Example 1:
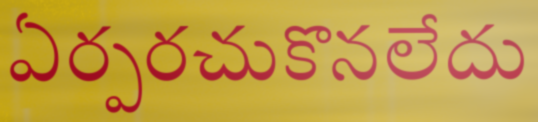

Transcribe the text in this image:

ఏర్పరచుకొనలేదు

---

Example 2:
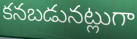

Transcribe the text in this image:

కనబడునట్లుగా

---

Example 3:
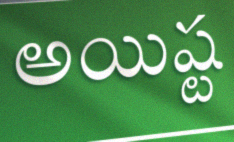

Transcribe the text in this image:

అయిష్ట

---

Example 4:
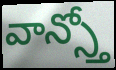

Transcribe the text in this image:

వాన్స్తో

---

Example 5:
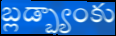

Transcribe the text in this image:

బ్లడ్బ్యాంకు